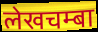
लेखचम्बा